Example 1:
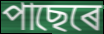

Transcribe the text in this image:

পাছেৰে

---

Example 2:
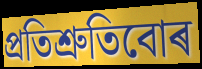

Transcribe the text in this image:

প্ৰতিশ্ৰুতিবোৰ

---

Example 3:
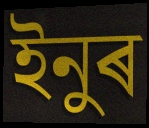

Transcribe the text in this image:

ইনুৰ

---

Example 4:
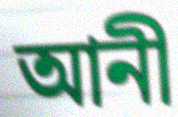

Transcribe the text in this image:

আনী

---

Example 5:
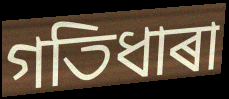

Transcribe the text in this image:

গতিধাৰা